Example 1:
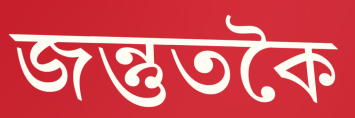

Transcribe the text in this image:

জন্তুতকৈ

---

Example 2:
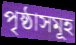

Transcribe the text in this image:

পৃষ্ঠাসমূহ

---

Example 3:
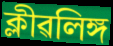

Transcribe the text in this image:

ক্লীৱলিঙ্গ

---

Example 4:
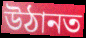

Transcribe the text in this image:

উঠানত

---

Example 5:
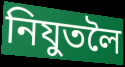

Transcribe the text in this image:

নিযুতলৈ